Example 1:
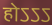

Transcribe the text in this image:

होऽऽऽ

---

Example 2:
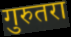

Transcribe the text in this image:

गुरुतरा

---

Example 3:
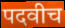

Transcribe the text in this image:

पदवीच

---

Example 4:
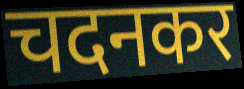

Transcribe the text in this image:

चदनकर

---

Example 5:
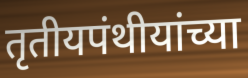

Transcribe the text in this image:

तृतीयपंथीयांच्या